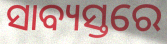
ସାବ୍ୟସ୍ତରେ